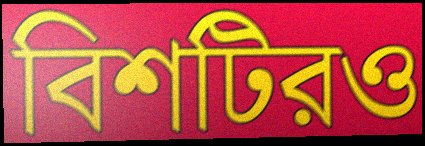
বিশটিরও